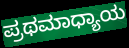
ಪ್ರಥಮಾಧ್ಯಾಯ